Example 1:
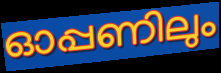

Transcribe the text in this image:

ഓപ്പണിലും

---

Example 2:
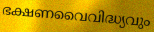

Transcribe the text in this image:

ഭക്ഷണവൈവിദ്ധ്യവും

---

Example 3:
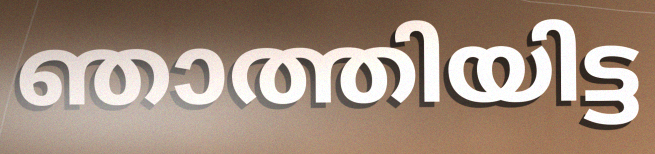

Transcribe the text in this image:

ഞാത്തിയിട്ട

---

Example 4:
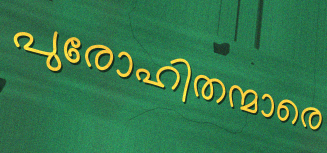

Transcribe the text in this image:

പുരോഹിതന്മാരെ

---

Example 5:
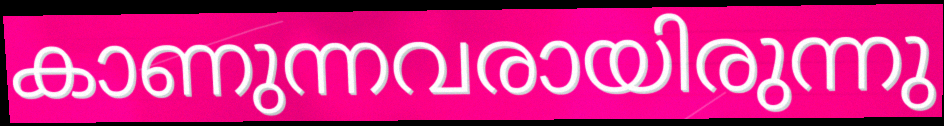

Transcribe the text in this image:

കാണുന്നവരായിരുന്നു